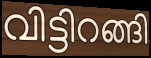
വിട്ടിറങ്ങി